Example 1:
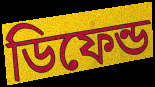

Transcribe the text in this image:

ডিফেন্ড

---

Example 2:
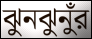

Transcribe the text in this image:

ঝুনঝুনুঁর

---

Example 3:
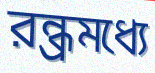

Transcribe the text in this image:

রন্ধ্রমধ্যে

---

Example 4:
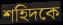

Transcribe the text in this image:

শহিদকে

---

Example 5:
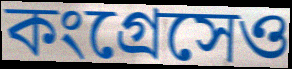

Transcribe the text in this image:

কংগ্রেসেও